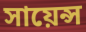
সায়েন্স